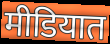
मीडियात